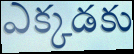
ఎక్కడకు